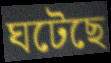
ঘটেছে